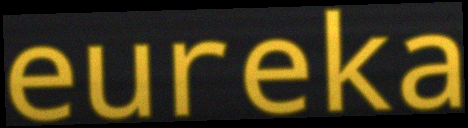
eureka